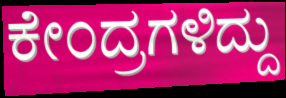
ಕೇಂದ್ರಗಳಿದ್ದು